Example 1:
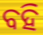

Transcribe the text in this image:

ବହି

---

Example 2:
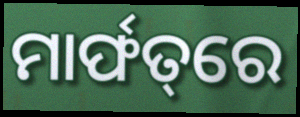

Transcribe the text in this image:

ମାର୍ଫତ୍‌ରେ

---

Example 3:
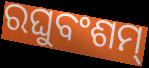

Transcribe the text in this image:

ରଘୁବଂଶମ୍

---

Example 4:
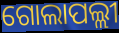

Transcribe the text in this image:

ଗୋଲାପଲ୍ଲୀ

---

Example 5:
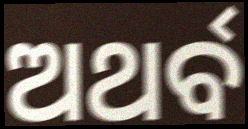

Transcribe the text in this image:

ଅଥର୍ବ